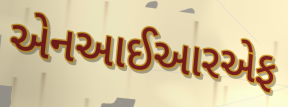
એનઆઈઆરએફ